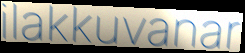
ilakkuvanar